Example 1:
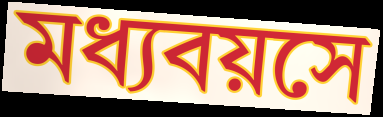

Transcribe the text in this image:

মধ্যবয়সে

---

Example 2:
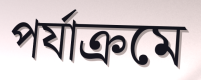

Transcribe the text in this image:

পর্যাক্রমে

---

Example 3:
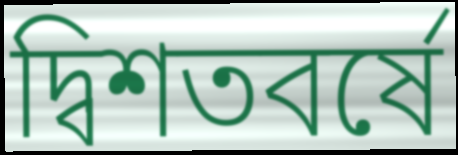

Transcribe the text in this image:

দ্বিশতবর্ষে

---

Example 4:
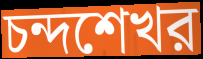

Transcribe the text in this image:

চন্দশেখর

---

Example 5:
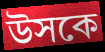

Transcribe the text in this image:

উসকে